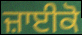
ਜ਼ਾਈਕੋ